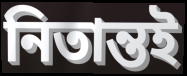
নিতান্তই